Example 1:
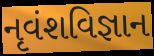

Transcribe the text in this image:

નૃવંશવિજ્ઞાન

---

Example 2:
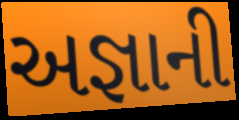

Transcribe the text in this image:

અજ્ઞાની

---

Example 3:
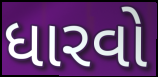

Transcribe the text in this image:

ધારવો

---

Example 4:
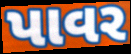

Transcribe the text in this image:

પાવર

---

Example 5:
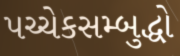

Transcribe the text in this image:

પચ્ચેકસમ્બુદ્ધો